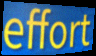
effort